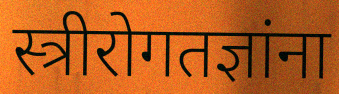
स्त्रीरोगतज्ञांना